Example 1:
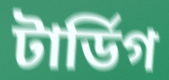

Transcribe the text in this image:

টার্ডিগ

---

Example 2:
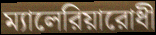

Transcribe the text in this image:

ম্যালেরিয়ারোধী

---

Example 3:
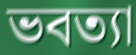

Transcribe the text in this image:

ভবত্যা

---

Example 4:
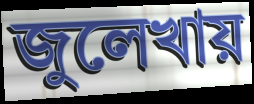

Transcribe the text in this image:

জুলেখায়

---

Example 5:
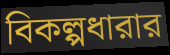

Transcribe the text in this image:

বিকল্পধারার